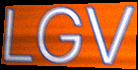
LGV